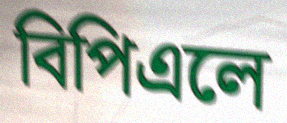
বিপিএলে